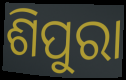
ଶିପୁରା